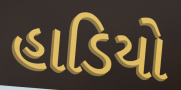
હાડિયો